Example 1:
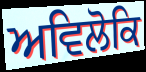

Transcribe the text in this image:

ਅਵਿਲੋਕਿ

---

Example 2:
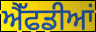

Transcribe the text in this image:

ਐੱਫਡੀਆਂ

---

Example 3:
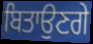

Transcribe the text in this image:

ਬਿਤਾਉਣਗੇ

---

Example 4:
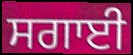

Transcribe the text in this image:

ਸਗਾਈ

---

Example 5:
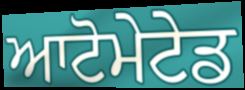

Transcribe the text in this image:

ਆਟੋਮੇਟੇਡ